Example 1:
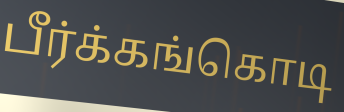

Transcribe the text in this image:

பீர்க்கங்கொடி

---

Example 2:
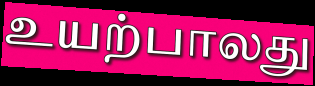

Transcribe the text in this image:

உயற்பாலது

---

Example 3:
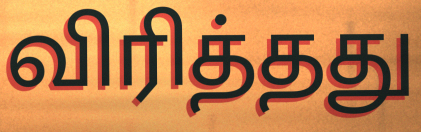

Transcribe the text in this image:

விரித்தது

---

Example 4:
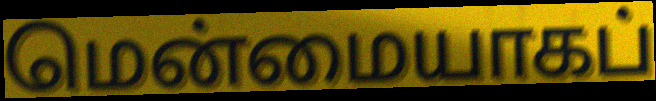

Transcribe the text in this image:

மென்மையாகப்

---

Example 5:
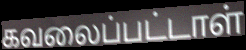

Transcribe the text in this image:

கவலைப்பட்டாள்